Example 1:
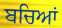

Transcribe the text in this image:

ਬਚਿਆਂ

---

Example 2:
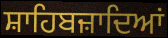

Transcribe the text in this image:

ਸ਼ਾਹਿਬਜ਼ਾਦਿਆਂ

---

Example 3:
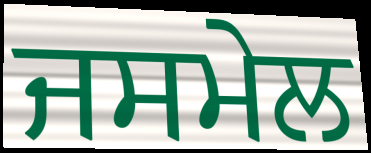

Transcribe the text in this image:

ਜਸਮੇਲ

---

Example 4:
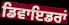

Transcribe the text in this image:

ਡਿਵਾਇਡਰਾਂ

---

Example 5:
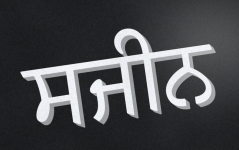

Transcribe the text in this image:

ਸਜੀਨ